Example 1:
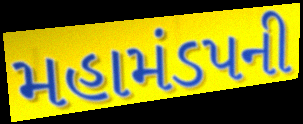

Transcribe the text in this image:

મહામંડપની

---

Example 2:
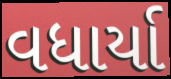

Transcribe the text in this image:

વધાર્યા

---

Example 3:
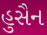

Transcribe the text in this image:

હુસૈન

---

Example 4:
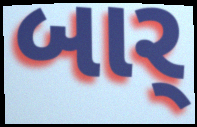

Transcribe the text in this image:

બાર્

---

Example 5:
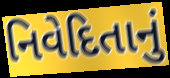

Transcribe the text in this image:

નિવેદિતાનું